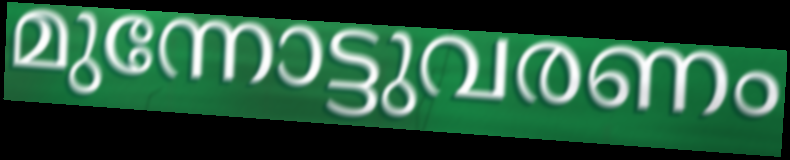
മുന്നോട്ടുവരണം